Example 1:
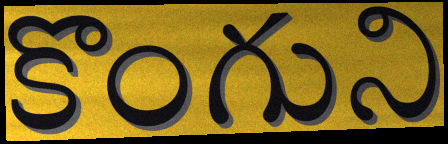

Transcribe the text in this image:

కొంగుని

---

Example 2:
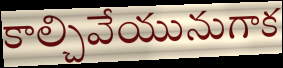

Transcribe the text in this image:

కాల్చివేయునుగాక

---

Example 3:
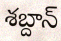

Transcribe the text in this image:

శబ్దాన్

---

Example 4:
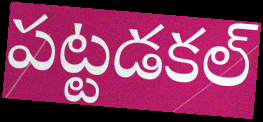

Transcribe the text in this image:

పట్టడకల్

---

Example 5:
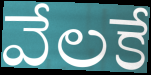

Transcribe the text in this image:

వేలకే